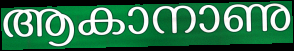
ആകാനാണു